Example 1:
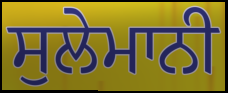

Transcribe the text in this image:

ਸੁਲੇਮਾਨੀ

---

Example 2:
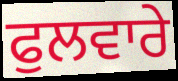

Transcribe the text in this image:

ਫੁਲਵਾਰੇ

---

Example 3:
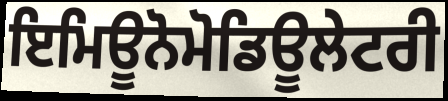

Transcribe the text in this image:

ਇਮਿਊਨੋਮੋਡਿਊਲੇਟਰੀ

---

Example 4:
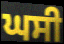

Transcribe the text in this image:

ਘਸੀ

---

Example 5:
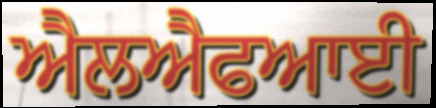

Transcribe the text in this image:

ਐਲਐਫਆਈ